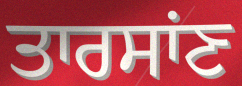
ਤਾਰਸਾਂਣ